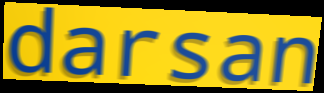
darsan